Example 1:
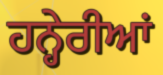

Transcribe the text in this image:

ਹਨ੍ਹੇਰੀਆਂ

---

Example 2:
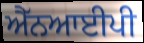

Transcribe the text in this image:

ਐੱਨਆਈਪੀ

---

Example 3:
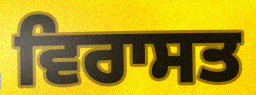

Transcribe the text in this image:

ਵਿਰਾਸਤ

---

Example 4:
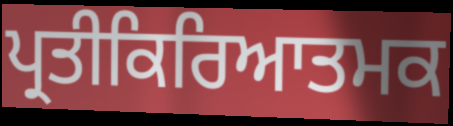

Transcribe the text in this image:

ਪ੍ਰਤੀਕਿਰਿਆਤਮਕ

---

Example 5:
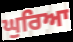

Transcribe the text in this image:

ਘੁਰਿਆ